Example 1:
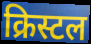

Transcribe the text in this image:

क्रिस्टल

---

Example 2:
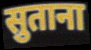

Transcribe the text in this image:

सुताना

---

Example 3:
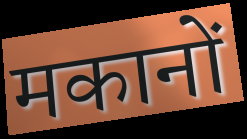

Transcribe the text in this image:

मकानों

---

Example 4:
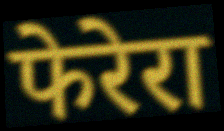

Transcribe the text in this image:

फेरेरा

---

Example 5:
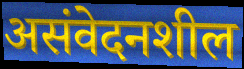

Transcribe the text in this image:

असंवेदनशील